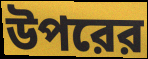
উপরের